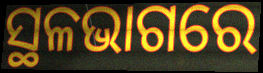
ସ୍ଥଳଭାଗରେ